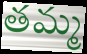
తమ్మ